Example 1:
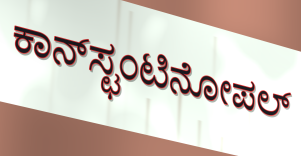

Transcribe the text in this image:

ಕಾನ್‍ಸ್ಟಂಟಿನೋಪಲ್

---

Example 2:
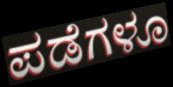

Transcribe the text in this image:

ಪಡೆಗಳೂ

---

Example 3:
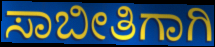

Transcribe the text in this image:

ಸಾಬೀತಿಗಾಗಿ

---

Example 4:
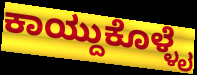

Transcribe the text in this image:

ಕಾಯ್ದುಕೊಳ್ಳೈ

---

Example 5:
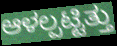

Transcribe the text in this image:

ಆಳಲ್ಪಟ್ಟಿತ್ತು